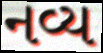
નવ્ય